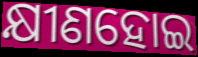
କ୍ଷୀଣହୋଇ